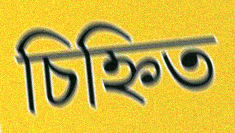
চিহ্নিত